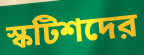
স্কটিশদের